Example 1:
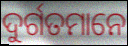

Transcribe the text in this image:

ଦୁର୍ଗତମାନେ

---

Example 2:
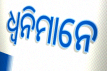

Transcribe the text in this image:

ଧ୍ୱନିମାନେ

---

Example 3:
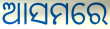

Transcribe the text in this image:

ଆସମରେ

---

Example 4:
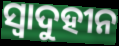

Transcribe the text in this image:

ସ୍ୱାଦୁହୀନ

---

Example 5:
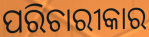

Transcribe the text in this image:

ପରିଚାରୀକାର